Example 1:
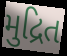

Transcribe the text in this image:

મુદ્રિત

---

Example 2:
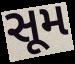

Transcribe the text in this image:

સૂમ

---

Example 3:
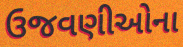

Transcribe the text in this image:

ઉજવણીઓના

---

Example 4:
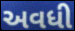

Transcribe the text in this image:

અવધી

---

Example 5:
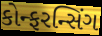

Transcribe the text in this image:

કોન્ફરન્સિંગ